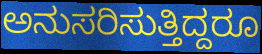
ಅನುಸರಿಸುತ್ತಿದ್ದರೂ